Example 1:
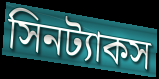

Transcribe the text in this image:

সিনট্যাকস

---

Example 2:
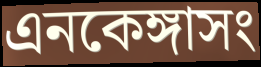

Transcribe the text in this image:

এনকেঙ্গাসং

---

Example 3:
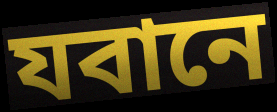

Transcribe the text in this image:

যবানে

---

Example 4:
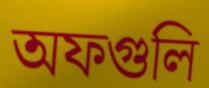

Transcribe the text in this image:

অফগুলি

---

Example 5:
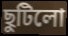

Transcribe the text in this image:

ছুটিলো